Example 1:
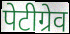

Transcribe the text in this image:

पेटीग्रेव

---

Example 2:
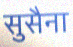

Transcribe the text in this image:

सुसैना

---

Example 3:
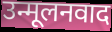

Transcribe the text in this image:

उन्मूलनवाद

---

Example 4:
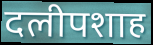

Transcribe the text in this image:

दलीपशाह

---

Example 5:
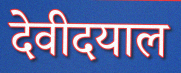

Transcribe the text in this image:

देवीदयाल